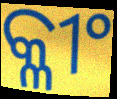
କ୍ଳୀଂ